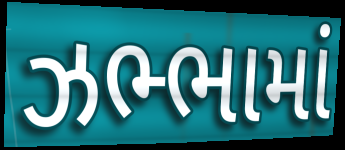
ઝભ્ભામાં